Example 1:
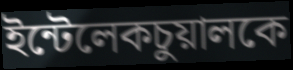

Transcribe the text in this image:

ইন্টেলেকচুয়ালকে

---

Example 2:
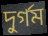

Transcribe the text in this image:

দুর্গম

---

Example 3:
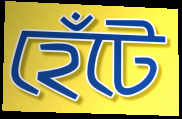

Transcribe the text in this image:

হেঁটে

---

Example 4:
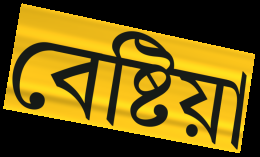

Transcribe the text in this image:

বেষ্টিয়া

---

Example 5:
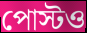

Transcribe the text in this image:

পোস্টও